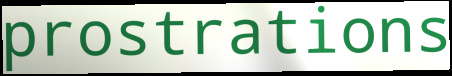
prostrations